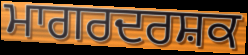
ਮਾਗਰਦਰਸ਼ਕ